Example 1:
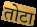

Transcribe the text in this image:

तोटा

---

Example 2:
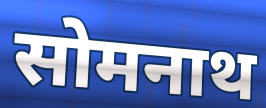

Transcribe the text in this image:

सोमनाथ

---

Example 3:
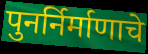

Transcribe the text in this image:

पुनर्निर्माणाचे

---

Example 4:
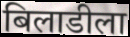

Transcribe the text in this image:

बिलाडीला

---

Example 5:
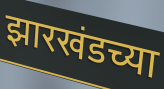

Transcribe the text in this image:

झारखंडच्या